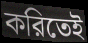
করিতেই